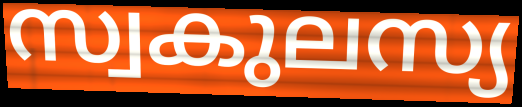
സ്വകുലസ്യ